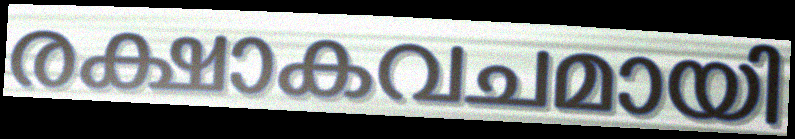
രക്ഷാകവചമായി